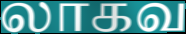
லாகவ